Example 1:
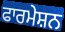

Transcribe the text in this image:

ਫਾਰਮੇਸ਼ਨ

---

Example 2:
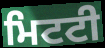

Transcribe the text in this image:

ਮਿਟਟੀ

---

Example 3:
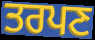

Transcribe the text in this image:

ਤਰਪਣ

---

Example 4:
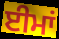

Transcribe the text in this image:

ਈਮਾਂ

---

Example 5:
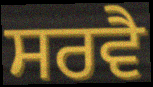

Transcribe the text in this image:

ਸਰਵੈ